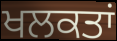
ਖਲਕਤਾਂ